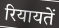
रियायतें